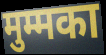
मुम्मका